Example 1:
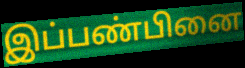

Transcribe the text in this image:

இப்பண்பினை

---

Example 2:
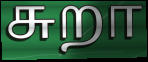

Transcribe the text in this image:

சுறா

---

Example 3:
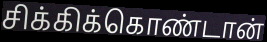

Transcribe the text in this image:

சிக்கிக்கொண்டான்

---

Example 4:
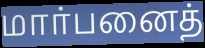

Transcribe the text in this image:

மார்பனைத்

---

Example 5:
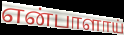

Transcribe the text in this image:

என்பாளாய்